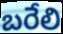
బరేలి